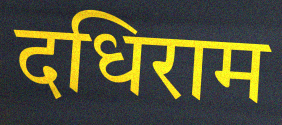
दधिराम